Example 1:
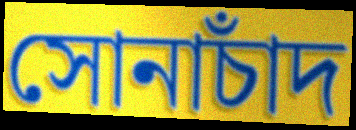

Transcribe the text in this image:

সোনাচাঁদ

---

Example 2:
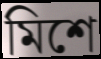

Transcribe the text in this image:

মিশে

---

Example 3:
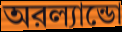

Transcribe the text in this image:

অরল্যান্ডো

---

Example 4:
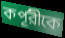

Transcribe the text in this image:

কর্পূরীকে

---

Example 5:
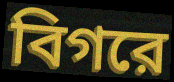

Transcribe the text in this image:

বিগরে